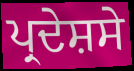
ਪ੍ਰਦੇਸ਼ਸੇ